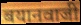
बयानवाजी